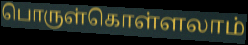
பொருள்கொள்ளலாம்